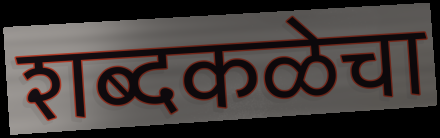
शब्दकळेचा